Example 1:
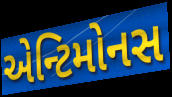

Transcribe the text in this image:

એન્ટિમોનસ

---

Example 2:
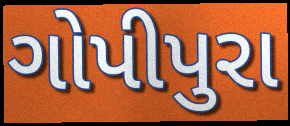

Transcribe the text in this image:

ગોપીપુરા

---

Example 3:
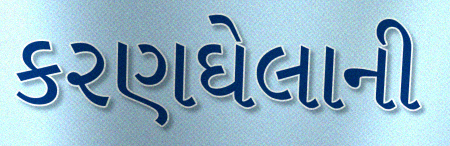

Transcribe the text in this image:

કરણઘેલાની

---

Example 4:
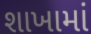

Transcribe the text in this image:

શાખામાં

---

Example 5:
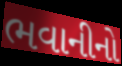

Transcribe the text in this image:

ભવાનીનો